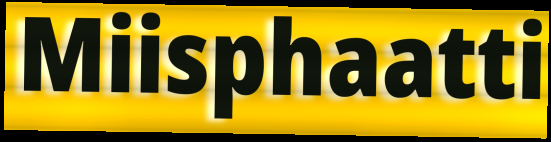
Miisphaatti